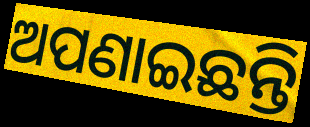
ଅପଣାଇଛନ୍ତି